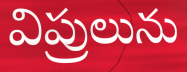
విప్రులును